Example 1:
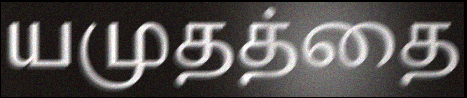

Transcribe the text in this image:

யமுதத்தை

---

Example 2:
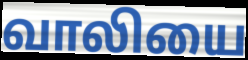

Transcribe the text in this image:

வாலியை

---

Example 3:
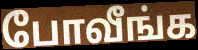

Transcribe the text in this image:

போவீங்க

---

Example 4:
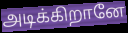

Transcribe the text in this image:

அடிக்கிறானே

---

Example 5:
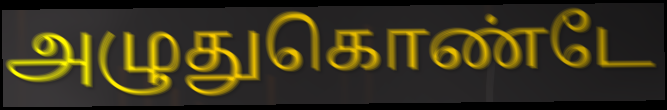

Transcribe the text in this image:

அழுதுகொண்டே